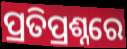
ପ୍ରତିପ୍ରଶ୍ନରେ